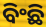
ବିଂଛି